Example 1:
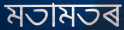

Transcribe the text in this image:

মতামতৰ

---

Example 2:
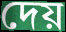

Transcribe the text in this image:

দেয়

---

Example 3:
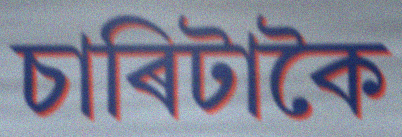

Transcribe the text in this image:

চাৰিটাকৈ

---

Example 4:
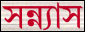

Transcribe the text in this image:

সন্ন্যাস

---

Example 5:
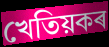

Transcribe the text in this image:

খেতিয়কৰ